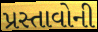
પ્રસ્તાવોની